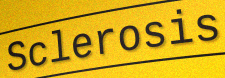
Sclerosis